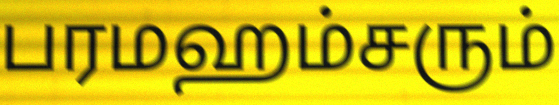
பரமஹம்சரும்